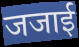
जजाई